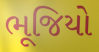
ભૂજિયો